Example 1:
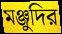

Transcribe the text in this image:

মঞ্জুদির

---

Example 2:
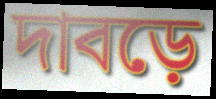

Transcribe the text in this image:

দাবড়ে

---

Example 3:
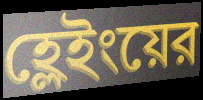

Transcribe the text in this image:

হ্লেইংয়ের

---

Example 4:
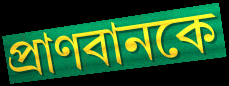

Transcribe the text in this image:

প্রাণবানকে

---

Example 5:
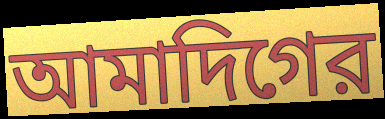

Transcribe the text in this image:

আমাদিগের